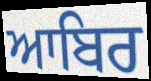
ਆਬਿਰ